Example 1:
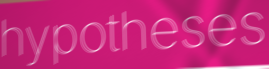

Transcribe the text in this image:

hypotheses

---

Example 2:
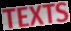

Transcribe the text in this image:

TEXTS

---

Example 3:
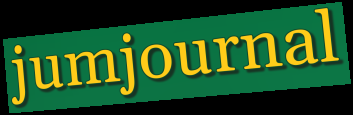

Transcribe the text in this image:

jumjournal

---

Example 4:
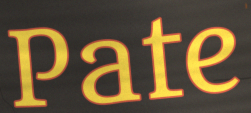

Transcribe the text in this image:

Pate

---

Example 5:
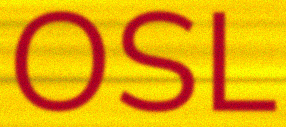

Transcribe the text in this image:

OSL